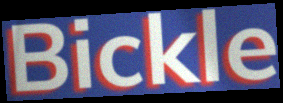
Bickle